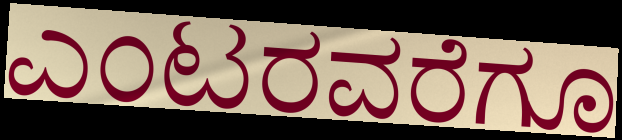
ಎಂಟರವರೆಗೂ